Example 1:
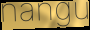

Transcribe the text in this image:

nangu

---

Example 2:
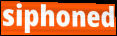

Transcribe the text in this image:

siphoned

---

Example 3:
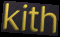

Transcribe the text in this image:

kith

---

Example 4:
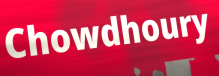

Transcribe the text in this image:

Chowdhoury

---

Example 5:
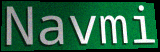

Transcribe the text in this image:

Navmi